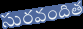
సురవందిత